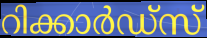
റിക്കാർഡ്സ്